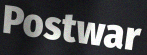
Postwar